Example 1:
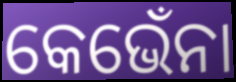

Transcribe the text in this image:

କେଭେଁନା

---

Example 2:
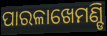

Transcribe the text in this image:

ପାରଳାଖେମଣ୍ଡି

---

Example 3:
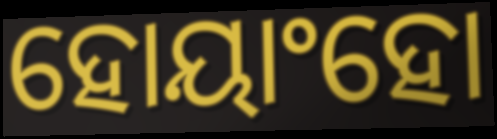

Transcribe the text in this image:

ହୋୟାଂହୋ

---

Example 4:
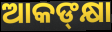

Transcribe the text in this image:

ଆକଙ୍‍କ୍ଷା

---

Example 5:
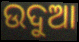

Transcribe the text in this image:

ଉଦୁଆ